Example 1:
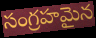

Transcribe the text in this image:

సంగ్రహమైన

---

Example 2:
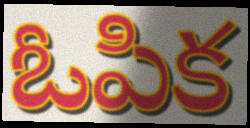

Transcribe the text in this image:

ఓపిక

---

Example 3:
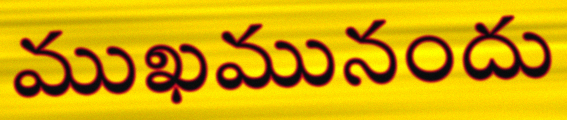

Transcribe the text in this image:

ముఖమునందు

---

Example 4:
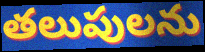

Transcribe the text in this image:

తలుపులను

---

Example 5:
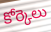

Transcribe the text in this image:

కోర్కెలు